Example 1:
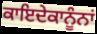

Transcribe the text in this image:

ਕਾਇਦੇਕਾਨੂੰਨਾਂ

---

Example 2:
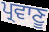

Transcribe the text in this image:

ਪ੍ਰਵਾਣੂ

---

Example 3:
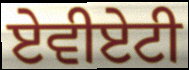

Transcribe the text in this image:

ਏਵੀਏਟੀ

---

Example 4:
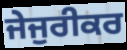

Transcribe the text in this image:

ਜੇਜੁਰੀਕਰ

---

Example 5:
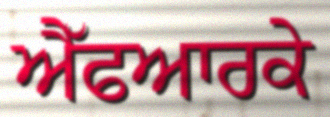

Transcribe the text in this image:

ਐੱਫਆਰਕੇ